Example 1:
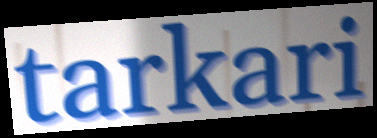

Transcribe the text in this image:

tarkari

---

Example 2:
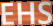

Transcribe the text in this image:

EHS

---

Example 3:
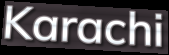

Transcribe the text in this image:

Karachi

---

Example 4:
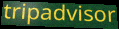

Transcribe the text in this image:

tripadvisor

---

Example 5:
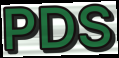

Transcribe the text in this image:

PDS